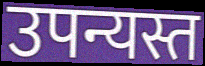
उपन्यस्त